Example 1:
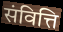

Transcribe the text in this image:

संवित्ति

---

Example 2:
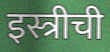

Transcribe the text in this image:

इस्त्रीची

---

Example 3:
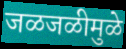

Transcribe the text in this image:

जळजळीमुळे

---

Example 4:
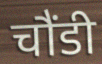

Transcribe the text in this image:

चौंडी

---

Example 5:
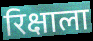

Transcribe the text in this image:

रिक्षाला